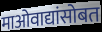
माओवाद्यांसोबत